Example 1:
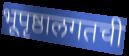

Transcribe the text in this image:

भूपृष्ठालगतची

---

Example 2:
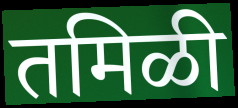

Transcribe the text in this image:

तमिळी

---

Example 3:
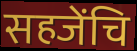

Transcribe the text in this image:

सहजेंचि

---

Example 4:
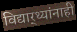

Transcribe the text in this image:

विद्यार्थ्यांनाही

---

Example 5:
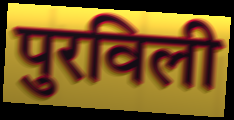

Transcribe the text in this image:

पुरविली